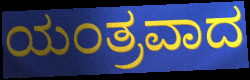
ಯಂತ್ರವಾದ